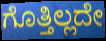
ಗೊತ್ತಿಲ್ಲದೇ